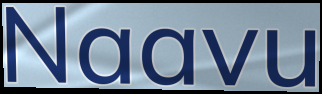
Naavu